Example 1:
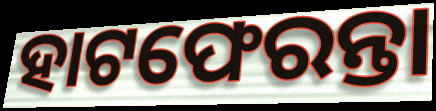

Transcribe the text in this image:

ହାଟଫେରନ୍ତା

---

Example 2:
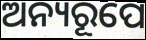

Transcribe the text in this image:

ଅନ୍ୟରୂପେ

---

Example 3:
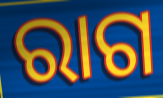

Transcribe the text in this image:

ରାଗ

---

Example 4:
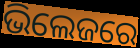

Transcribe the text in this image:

ଭିଲେଜରେ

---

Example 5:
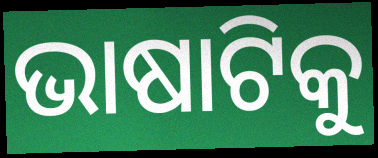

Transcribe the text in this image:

ଭାଷାଟିକୁ